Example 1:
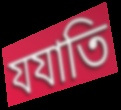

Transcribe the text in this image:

যযাতি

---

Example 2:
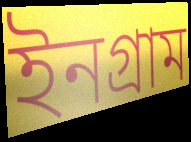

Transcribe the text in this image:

ইনগ্রাম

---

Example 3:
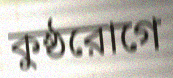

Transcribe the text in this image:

কুষ্ঠরোগে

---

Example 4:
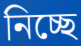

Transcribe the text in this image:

নিচ্ছে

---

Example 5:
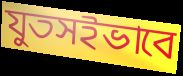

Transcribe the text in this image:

যুতসইভাবে